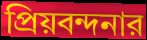
প্রিয়বন্দনার